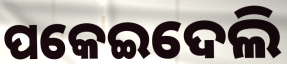
ପକେଇଦେଲି